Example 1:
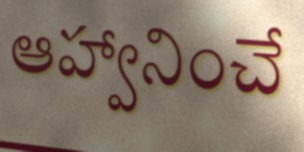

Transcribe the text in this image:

ఆహ్వానించే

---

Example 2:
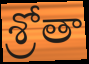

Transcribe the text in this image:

శ్రోతా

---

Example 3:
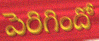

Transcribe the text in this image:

పెరిగిందో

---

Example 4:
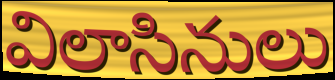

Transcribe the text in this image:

విలాసినులు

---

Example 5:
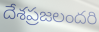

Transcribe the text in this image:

దేశప్రజలందరి